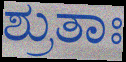
ಶ್ರುತಾಃ